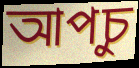
আপচু